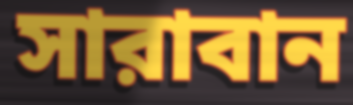
সারাবান